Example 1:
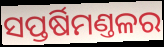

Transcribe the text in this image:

ସପ୍ତର୍ଷିମଣ୍ତଳର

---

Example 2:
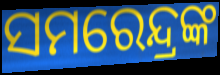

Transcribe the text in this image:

ସମରେନ୍ଦ୍ରଙ୍କ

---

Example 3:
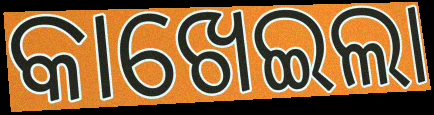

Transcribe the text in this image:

କାଖେଇଲା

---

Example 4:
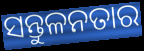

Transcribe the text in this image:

ସନ୍ତୁଳନତାର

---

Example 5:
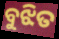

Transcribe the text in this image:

ବୁଝିତ